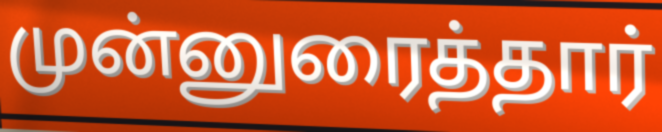
முன்னுரைத்தார்